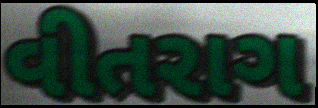
વીતરાગ